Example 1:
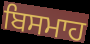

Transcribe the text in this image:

ਬਿਸਮਾਹ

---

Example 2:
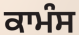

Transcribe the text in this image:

ਕਾਮੰਸ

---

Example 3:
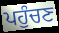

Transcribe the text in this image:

ਪਹੁੰਚਣ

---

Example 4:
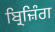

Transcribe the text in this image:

ਬ੍ਰਿਜ਼ਿੰਗ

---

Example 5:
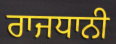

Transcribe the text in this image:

ਰਾਜਧਾਨੀ